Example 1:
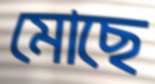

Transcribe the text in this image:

মোছে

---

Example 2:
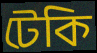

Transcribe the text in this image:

টেকি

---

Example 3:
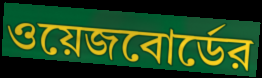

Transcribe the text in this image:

ওয়েজবোর্ডের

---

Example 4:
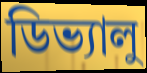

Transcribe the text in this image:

ডিভ্যালু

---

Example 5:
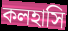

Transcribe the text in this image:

কলহাসি